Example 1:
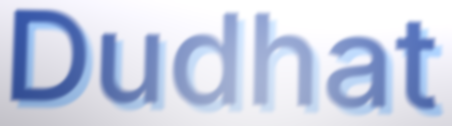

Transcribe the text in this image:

Dudhat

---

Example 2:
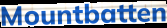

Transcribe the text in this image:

Mountbatten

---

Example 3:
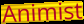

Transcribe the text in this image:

Animist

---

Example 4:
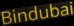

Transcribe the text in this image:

Bindubai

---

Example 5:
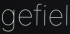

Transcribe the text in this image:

gefiel